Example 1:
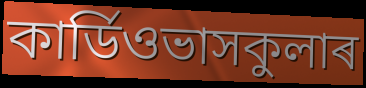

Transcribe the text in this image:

কাৰ্ডিওভাসকুলাৰ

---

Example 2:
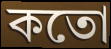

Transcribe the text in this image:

কতো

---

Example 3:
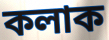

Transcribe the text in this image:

কলাক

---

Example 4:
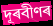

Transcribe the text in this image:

দূৰবীণৰ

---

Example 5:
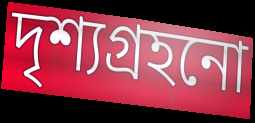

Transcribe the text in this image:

দৃশ্যগ্ৰহনো